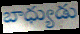
బాధ్యుడు